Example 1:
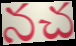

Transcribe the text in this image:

నచ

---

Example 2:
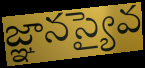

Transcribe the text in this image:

జ్ఞానస్యైవ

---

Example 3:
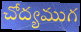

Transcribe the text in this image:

చోద్యముగ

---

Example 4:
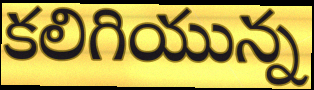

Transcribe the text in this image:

కలిగియున్న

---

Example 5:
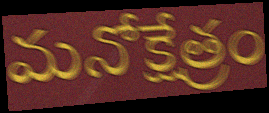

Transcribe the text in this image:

మనోక్షేత్రం